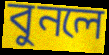
বুনলে